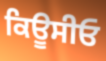
ਕਿਊਸੀਓ